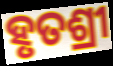
ହୃତଶ୍ରୀ